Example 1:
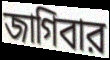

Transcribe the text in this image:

জাগিবার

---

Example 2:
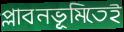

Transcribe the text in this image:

প্লাবনভূমিতেই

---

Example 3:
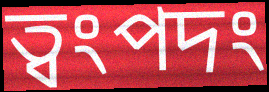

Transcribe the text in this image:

ত্বংপদং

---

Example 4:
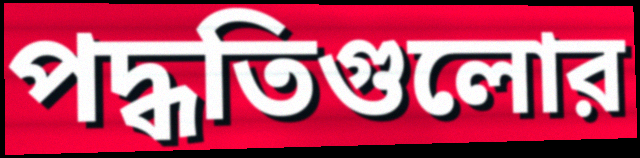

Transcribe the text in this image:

পদ্ধতিগুলোর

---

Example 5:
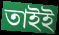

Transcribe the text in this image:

তাইই